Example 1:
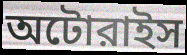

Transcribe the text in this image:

অটোরাইস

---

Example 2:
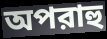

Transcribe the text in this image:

অপরাহু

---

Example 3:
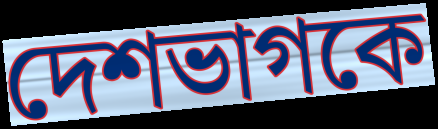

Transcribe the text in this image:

দেশভাগকে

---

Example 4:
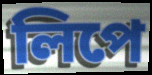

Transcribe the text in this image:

লিপে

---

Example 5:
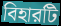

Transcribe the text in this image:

বিহারটি